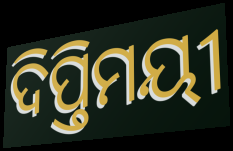
ଦିପ୍ତିମୟୀ